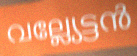
വല്ല്യേട്ടൻ